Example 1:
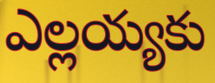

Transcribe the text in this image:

ఎల్లయ్యకు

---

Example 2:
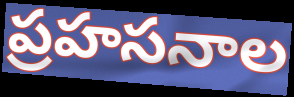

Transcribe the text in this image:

ప్రహసనాల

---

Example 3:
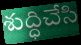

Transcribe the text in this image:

శుద్ధిచేసి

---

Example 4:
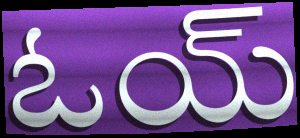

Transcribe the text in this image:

ఓయ్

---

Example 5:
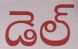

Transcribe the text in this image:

డెల్